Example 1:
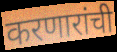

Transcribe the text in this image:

करणारांची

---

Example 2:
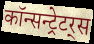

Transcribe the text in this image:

कॉन्सन्ट्रेटर्स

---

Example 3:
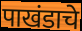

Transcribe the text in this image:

पाखंडाचे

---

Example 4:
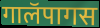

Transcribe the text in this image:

गालॅपागस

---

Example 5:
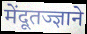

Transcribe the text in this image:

मेंदूतज्ज्ञाने